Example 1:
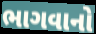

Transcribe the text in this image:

ભાગવાનો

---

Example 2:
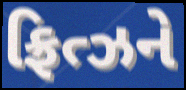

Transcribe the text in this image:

ફ્રિત્ઝને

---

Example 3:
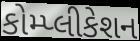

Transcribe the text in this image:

કોમ્પ્લીકેશન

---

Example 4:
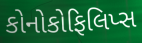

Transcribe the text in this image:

કોનોકોફિલિપ્સ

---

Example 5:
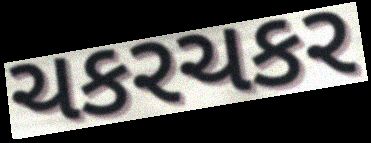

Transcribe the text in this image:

ચકરચકર